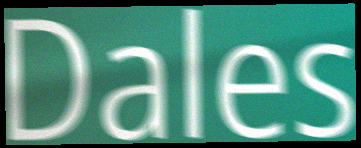
Dales